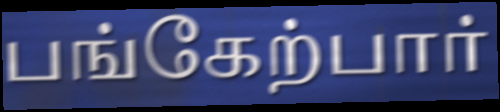
பங்கேற்பார்